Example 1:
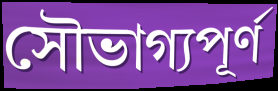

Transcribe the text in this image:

সৌভাগ্যপূর্ণ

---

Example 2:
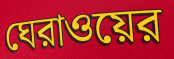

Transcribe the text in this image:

ঘেরাওয়ের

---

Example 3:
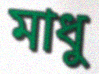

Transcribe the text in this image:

মাধু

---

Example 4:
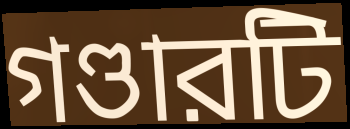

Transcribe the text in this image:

গণ্ডারটি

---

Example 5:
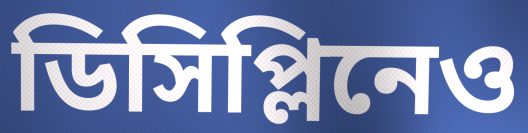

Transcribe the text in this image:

ডিসিপ্লিনেও